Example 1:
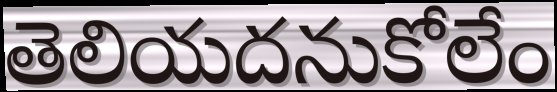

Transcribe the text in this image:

తెలియదనుకోలేం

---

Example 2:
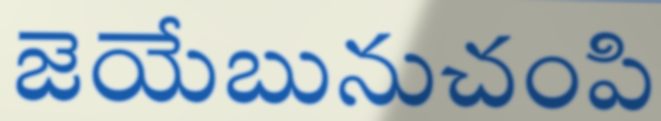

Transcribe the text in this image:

జెయేబునుచంపి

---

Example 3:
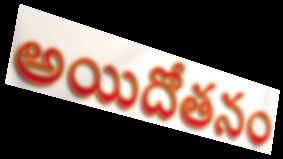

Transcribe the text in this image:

అయిదోతనం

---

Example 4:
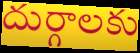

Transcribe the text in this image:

దుర్గాలకు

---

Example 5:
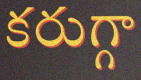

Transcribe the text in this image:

కరుగ్గా